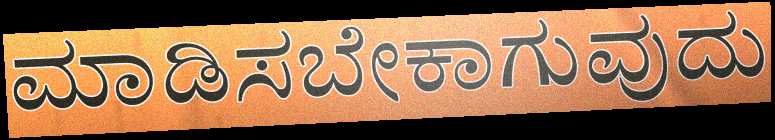
ಮಾಡಿಸಬೇಕಾಗುವುದು